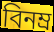
বিনম্ৰ